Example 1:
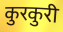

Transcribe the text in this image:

कुरकुरी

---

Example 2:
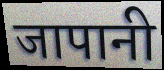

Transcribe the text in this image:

जापानी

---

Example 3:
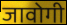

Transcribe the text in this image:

जावोगी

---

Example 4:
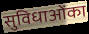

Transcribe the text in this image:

सुविधाओंका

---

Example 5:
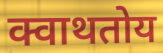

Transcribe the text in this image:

क्वाथतोय